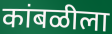
कांबळीला